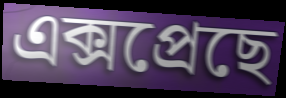
এক্সপ্ৰেছে